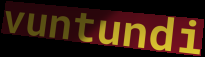
vuntundi